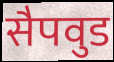
सैपवुड